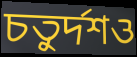
চতুর্দশও